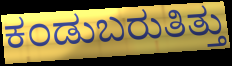
ಕಂಡುಬರುತಿತ್ತು